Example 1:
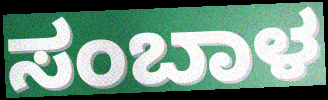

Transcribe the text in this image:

ಸಂಬಾಳ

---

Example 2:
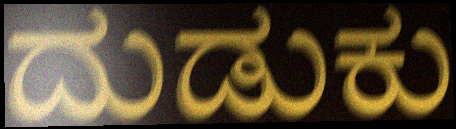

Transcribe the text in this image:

ದುಡುಕು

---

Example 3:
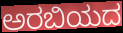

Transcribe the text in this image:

ಅರಬಿಯದ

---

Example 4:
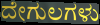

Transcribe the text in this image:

ದೇಗುಲಗಳು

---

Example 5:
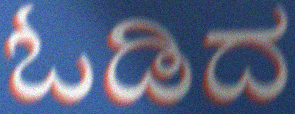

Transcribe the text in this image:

ಓಡಿದ